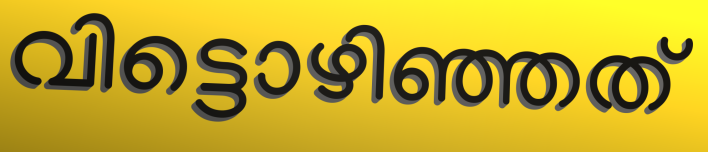
വിട്ടൊഴിഞ്ഞത്